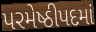
પરમેષ્ઠીપદમાં